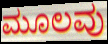
ಮೂಲವು